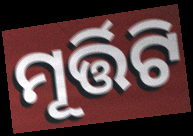
ମୂର୍ତ୍ତିଟି